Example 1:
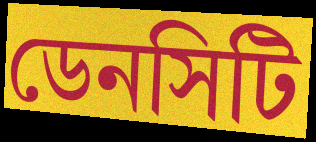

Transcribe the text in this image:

ডেনসিটি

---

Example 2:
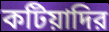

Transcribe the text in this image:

কটিয়াদির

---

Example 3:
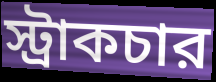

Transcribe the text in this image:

স্ট্রাকচার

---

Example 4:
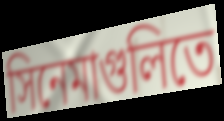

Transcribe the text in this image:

সিনেমাগুলিতে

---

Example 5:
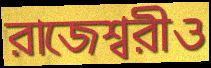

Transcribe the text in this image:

রাজেশ্বরীও